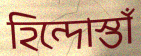
হিন্দোস্তাঁ